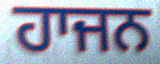
ਹਾਜਨ